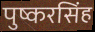
पुष्करसिंह